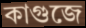
কাগুজে